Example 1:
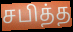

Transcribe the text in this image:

சபித்த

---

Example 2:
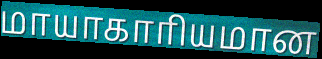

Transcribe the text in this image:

மாயாகாரியமான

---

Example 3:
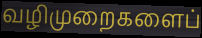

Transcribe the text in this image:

வழிமுறைகளைப்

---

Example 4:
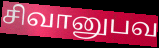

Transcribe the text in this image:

சிவானுபவ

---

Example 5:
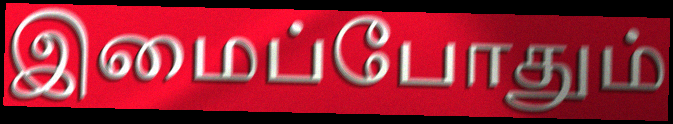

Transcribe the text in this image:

இமைப்போதும்